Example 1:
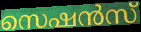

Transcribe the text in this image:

സെഷൻസ്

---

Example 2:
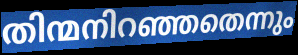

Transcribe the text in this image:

തിന്മനിറഞ്ഞതെന്നും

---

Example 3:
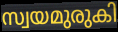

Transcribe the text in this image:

സ്വയമുരുകി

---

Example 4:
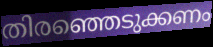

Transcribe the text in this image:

തിരഞ്ഞെടുക്കണം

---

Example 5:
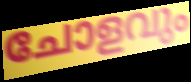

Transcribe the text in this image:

ചോളവും